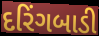
દરિંગબાડી